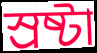
স্রষ্টা